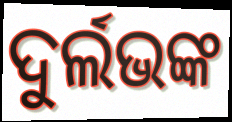
ଦୁର୍ଲଭଙ୍କ